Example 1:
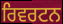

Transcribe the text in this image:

ਰਿਵਰਟਨ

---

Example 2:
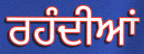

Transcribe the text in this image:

ਰਹੰਦੀਆਂ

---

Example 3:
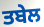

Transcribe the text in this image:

ਤਬੇਲ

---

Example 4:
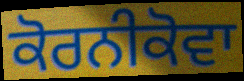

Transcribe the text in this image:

ਕੋਰਨੀਕੋਵਾ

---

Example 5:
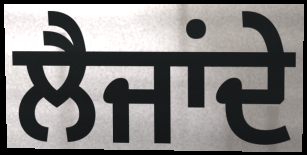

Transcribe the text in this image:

ਲੈਜਾਂਦੇ